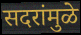
सदरांमुळे